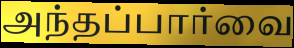
அந்தப்பார்வை